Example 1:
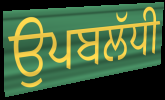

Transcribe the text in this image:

ਉਪਬਲੱਧੀ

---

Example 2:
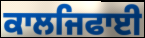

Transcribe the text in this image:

ਕਾਲਜਿਫਾਈ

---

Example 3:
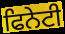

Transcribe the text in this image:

ਫਿਨੇਟੀ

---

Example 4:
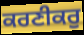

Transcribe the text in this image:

ਕਰਣੀਕਰੁ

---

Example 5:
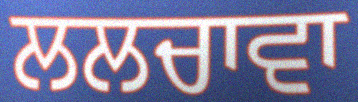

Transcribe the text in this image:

ਲਲਚਾਵਾ